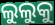
ଲୁଲୁକୁ